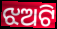
ଝଅଟି